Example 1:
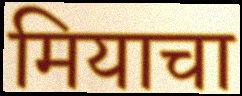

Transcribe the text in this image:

मियाचा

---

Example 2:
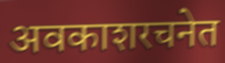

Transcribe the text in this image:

अवकाशरचनेत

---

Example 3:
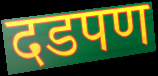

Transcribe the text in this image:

दडपण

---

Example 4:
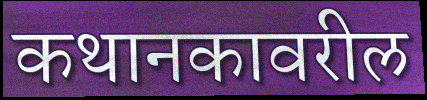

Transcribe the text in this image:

कथानकावरील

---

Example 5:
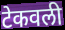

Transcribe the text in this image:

टेकवली